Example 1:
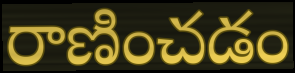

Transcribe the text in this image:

రాణించడం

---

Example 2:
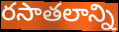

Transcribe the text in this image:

రసాతలాన్ని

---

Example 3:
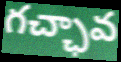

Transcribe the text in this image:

గచ్ఛావ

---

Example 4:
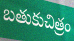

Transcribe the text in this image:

బతుకుచిత్రం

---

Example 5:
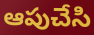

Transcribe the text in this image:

ఆపుచేసి